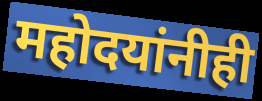
महोदयांनीही